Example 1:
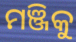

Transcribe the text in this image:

ମଞ୍ଜିକୁ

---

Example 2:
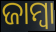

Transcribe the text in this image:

ଜାମ୍ବା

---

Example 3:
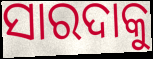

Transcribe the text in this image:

ସାରଦାକୁ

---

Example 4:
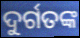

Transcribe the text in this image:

ଦୁର୍ଗତଙ୍କ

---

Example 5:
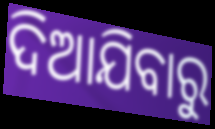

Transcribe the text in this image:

ଦିଆଯିବାରୁ